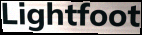
Lightfoot